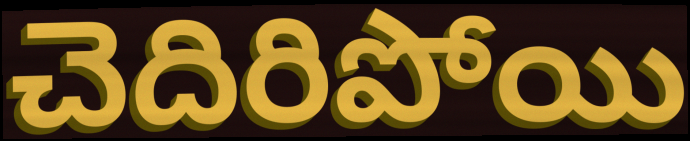
చెదిరిపోయి